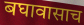
बघावासाच